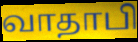
வாதாபி